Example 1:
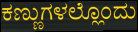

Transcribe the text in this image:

ಕಣ್ಣುಗಳಲ್ಲೊಂದು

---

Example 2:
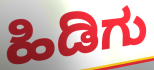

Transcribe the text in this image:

ಹಿಡಿಗು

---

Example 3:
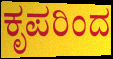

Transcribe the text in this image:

ಕೃಪರಿಂದ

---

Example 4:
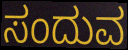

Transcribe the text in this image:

ಸಂದುವ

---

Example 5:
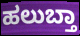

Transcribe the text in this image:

ಹಲುಬ್ತಾ